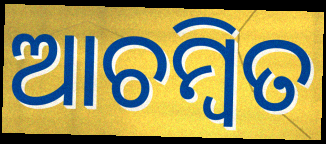
ଆଚମ୍ବିତ